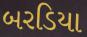
બરડિયા